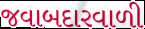
જવાબદારવાળી